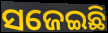
ସଜେଇଛି